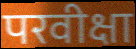
परवीक्षा